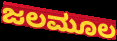
ಜಲಮೂಲ